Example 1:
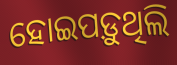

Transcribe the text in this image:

ହୋଇପଡ଼ୁଥିଲି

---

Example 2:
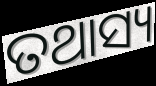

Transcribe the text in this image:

ତଥାସ୍ୟ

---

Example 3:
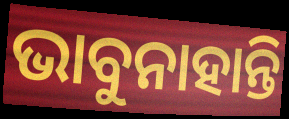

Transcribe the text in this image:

ଭାବୁନାହାନ୍ତି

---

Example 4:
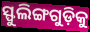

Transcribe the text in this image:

ସ୍ଫୁଲିଙ୍ଗଗୁଡ଼ିକୁ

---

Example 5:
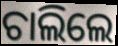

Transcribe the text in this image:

ଚାଲିଲେ